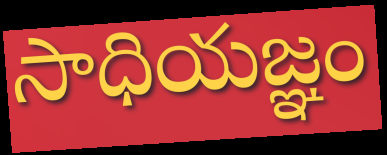
సాధియజ్ఞం